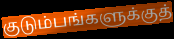
குடும்பங்களுக்குத்